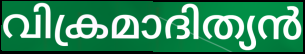
വിക്രമാദിത്യൻ